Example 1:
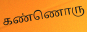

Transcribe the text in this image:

கண்ணொரு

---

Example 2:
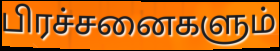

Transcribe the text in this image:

பிரச்சனைகளும்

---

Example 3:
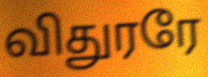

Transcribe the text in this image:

விதுரரே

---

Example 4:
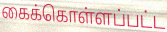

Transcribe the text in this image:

கைக்கொள்ளப்பட்ட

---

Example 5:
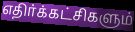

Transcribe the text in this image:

எதிர்க்கட்சிகளும்